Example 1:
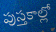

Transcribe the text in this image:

పుస్తకాల్లో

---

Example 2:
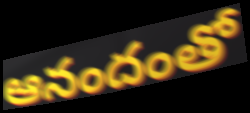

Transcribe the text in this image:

ఆనందంతో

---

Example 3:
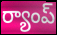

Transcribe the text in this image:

ర్యాంప్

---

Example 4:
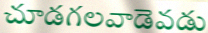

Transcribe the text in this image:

చూడగలవాడెవడు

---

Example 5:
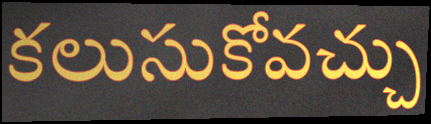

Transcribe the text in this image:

కలుసుకోవచ్చు